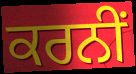
ਕਰਨੀਂ